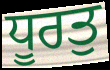
ਧੂਰਤੁ